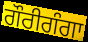
ਗੌਰੀਗੰਗਾ